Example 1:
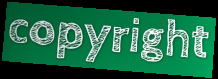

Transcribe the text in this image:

copyright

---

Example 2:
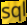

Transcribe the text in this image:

sql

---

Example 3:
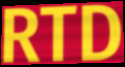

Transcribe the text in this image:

RTD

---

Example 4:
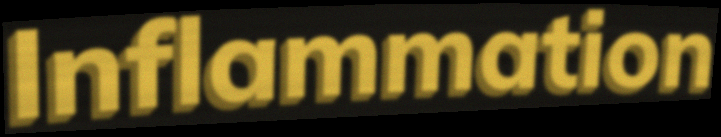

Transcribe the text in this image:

Inflammation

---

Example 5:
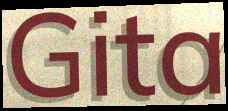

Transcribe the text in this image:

Gita